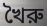
খৈরু